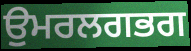
ਉੁਮਰਲਗਭਗ